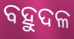
ବହୁଦଳ